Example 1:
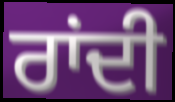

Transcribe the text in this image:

ਰਾਂਦੀ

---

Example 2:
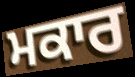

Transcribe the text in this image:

ਮਕਾਰ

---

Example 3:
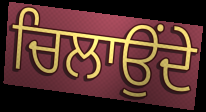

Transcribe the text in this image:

ਚਿਲਾਉਂਦੇ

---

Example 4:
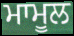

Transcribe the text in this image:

ਮਾਮੂਲ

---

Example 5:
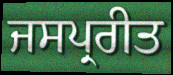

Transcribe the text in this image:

ਜਸਪ੍ਰਰੀਤ